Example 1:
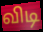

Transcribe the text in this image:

விடி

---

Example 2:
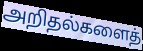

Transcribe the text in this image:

அறிதல்களைத்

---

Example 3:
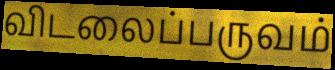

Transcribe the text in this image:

விடலைப்பருவம்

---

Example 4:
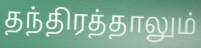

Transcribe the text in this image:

தந்திரத்தாலும்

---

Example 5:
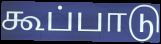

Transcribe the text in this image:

கூப்பாடு